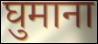
घुमाना